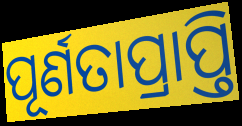
ପୂର୍ଣତାପ୍ରାପ୍ତି